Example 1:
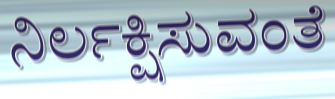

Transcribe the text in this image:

ನಿರ್ಲಕ್ಷಿಸುವಂತೆ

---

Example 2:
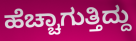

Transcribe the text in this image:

ಹೆಚ್ಚಾಗುತ್ತಿದ್ದು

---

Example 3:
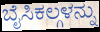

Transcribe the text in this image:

ಬೈಸಿಕಲ್ಗಳನ್ನು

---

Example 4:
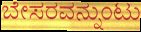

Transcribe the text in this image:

ಬೇಸರವನ್ನುಂಟು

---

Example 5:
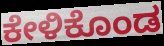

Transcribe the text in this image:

ಕೇಳಿಕೊಂಡ